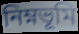
নিম্নভূমি